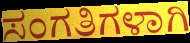
ಸಂಗತಿಗಳಾಗಿ